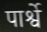
पार्श्वे